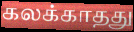
கலக்காதது